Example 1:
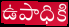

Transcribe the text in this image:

ఉపాధికి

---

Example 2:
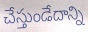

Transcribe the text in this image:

చేస్తుండేదాన్ని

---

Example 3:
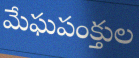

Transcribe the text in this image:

మేఘపంక్తుల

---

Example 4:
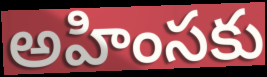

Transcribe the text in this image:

అహింసకు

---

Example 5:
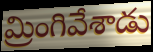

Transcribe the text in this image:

మ్రింగివేశాడు